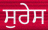
ਸੁਰੇਸ